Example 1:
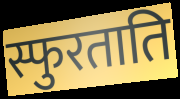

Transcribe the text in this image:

स्फुरताति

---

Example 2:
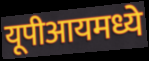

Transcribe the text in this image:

यूपीआयमध्ये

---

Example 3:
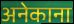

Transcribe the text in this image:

अनेकाना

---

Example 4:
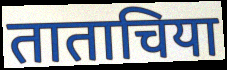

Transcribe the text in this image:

ताताचिया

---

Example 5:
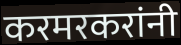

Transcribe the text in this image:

करमरकरांनी